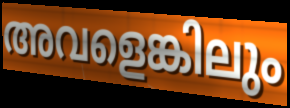
അവളെങ്കിലും